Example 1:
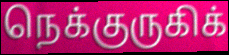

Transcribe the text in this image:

நெக்குருகிக்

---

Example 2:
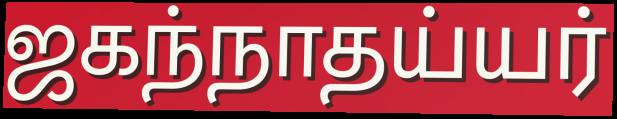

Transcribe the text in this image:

ஜகந்நாதய்யர்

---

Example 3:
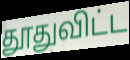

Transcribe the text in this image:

தூதுவிட்ட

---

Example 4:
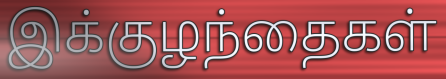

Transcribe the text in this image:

இக்குழந்தைகள்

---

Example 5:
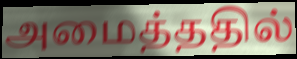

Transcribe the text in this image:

அமைத்ததில்